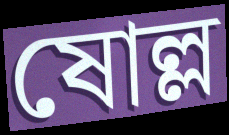
ষোল্ল